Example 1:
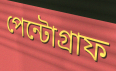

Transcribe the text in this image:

পেন্টোগ্রাফ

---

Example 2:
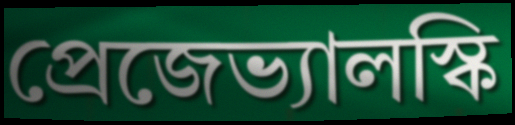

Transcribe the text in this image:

প্রেজেভ্যালস্কি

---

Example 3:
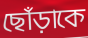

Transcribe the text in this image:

ছোঁড়াকে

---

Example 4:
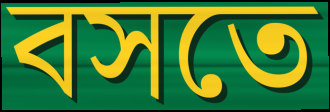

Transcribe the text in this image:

বসতে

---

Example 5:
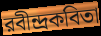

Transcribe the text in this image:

রবীন্দ্রকবিতা